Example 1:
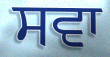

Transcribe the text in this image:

ਸਵਾ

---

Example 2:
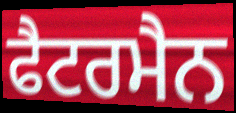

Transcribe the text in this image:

ਫੈਟਰਮੈਨ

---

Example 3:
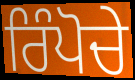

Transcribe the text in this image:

ਰਿੰਪੋਚੇ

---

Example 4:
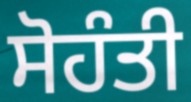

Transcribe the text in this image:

ਸੋਹੰਤੀ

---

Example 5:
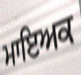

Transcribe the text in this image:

ਮਾਇਅਕ